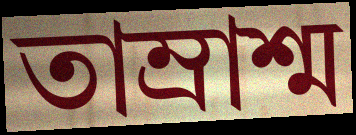
তাম্রাশ্ম